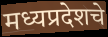
मध्यप्रदेशचे